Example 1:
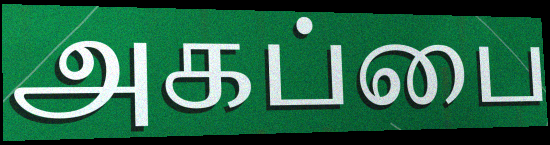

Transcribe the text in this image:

அகப்பை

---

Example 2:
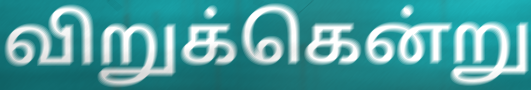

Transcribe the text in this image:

விறுக்கென்று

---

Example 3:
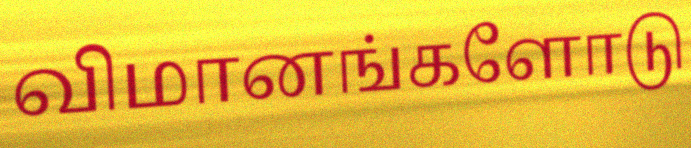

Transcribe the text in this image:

விமானங்களோடு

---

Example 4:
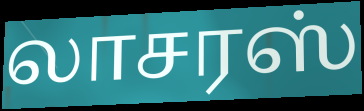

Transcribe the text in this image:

லாசரஸ்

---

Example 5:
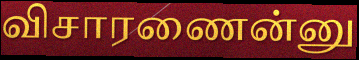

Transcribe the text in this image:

விசாரணைன்னு